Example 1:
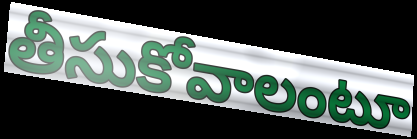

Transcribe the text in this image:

తీసుకోవాలంటూ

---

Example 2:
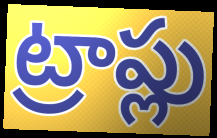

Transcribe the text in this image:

ట్రాప్లు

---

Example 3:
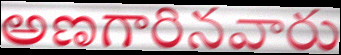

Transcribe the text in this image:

అణగారినవారు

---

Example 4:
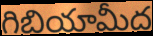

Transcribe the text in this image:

గిబియామీద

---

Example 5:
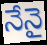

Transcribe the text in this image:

నేనై